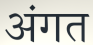
अंगत